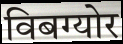
विबग्योर